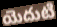
యెదుటి